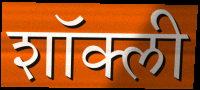
शॉक्ली